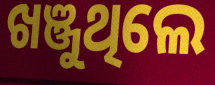
ଖଞ୍ଜୁଥିଲେ